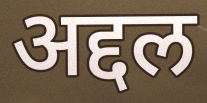
अद्दल